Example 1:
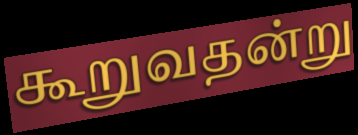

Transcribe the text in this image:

கூறுவதன்று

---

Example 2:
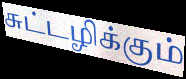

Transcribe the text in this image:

சுட்டழிக்கும்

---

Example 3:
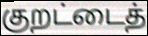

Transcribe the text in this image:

குறட்டைத்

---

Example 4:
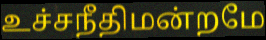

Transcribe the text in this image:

உச்சநீதிமன்றமே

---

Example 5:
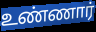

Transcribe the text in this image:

உண்ணார்